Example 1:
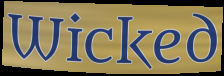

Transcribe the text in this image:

Wicked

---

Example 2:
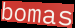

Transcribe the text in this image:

bomas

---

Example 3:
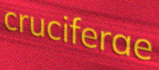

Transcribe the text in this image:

cruciferae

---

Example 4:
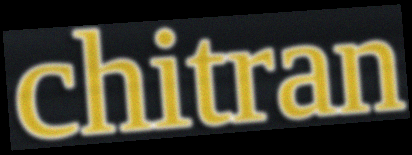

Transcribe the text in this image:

chitran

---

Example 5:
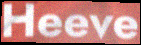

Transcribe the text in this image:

Heeve